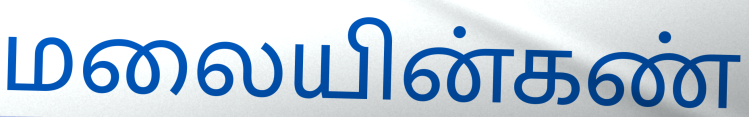
மலையின்கண்